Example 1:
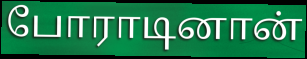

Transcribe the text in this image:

போராடினான்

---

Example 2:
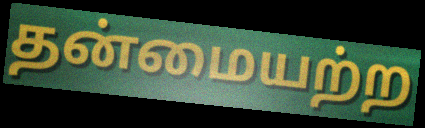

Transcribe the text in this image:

தன்மையற்ற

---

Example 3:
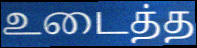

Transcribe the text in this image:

உடைத்த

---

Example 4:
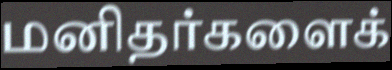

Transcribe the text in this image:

மனிதர்களைக்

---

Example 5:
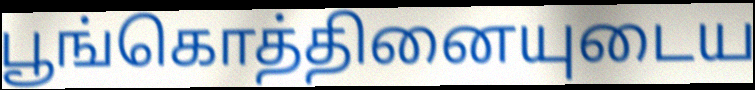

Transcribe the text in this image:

பூங்கொத்தினையுடைய